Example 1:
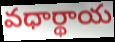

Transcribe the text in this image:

వధార్థాయ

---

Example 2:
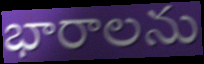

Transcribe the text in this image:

భారాలను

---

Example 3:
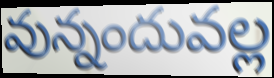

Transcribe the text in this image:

వున్నందువల్ల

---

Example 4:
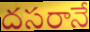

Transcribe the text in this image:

దసరానే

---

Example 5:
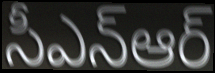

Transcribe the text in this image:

సీఎన్ఆర్